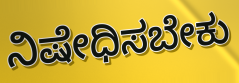
ನಿಷೇಧಿಸಬೇಕು